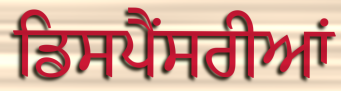
ਡਿਸਪੈਂਸਰੀਆਂ